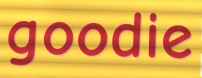
goodie